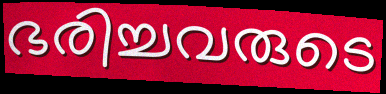
ഭരിച്ചവരുടെ